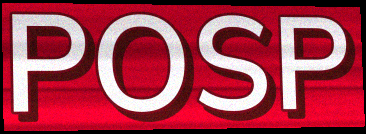
POSP